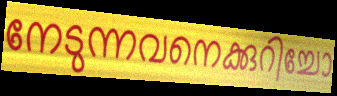
നേടുന്നവനെക്കുറിച്ചോ